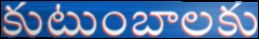
కుటుంబాలకు